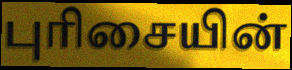
புரிசையின்